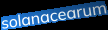
solanacearum